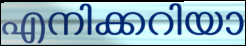
എനിക്കറിയാ